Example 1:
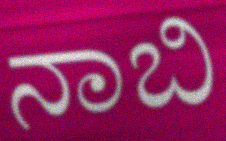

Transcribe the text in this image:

ನಾಬಿ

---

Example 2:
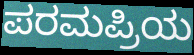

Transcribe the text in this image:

ಪರಮಪ್ರಿಯ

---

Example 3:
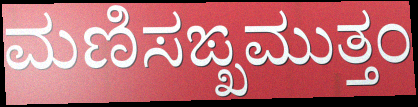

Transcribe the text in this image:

ಮಣಿಸಙ್ಖಮುತ್ತಂ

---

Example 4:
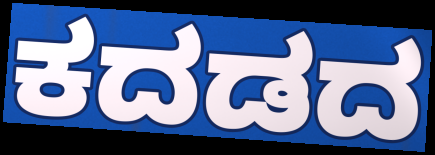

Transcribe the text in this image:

ಕದಡದ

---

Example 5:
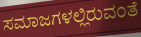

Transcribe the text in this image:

ಸಮಾಜಗಳಲ್ಲಿರುವಂತೆ